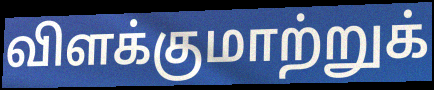
விளக்குமாற்றுக்